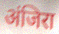
अंजिरा